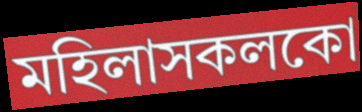
মহিলাসকলকো